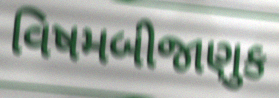
વિષમબીજાણુક